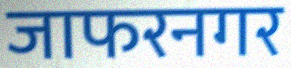
जाफरनगर